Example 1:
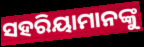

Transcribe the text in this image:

ସହରିୟାମାନଙ୍କୁ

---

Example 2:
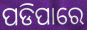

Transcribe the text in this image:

ପଡିପାରେ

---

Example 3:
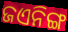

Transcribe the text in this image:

ଜଏନିଙ୍ଗ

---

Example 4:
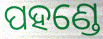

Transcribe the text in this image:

ପହଣ୍ଡେ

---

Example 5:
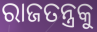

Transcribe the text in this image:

ରାଜତନ୍ତ୍ରକୁ